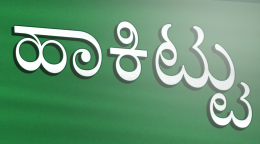
ಹಾಕಿಟ್ಟು